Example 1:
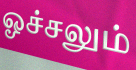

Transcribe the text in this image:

ஓச்சலும்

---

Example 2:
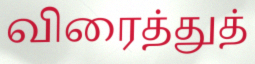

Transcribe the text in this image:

விரைத்துத்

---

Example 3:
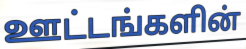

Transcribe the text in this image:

ஊட்டங்களின்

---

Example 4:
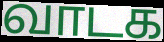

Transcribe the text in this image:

வாடக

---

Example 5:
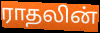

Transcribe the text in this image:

ராதலின்